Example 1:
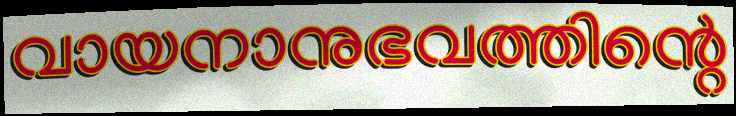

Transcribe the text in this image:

വായനാനുഭവത്തിന്റെ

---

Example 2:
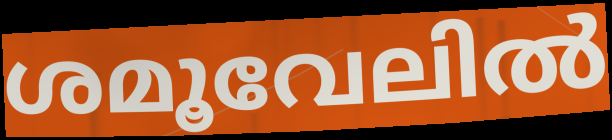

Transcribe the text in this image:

ശമൂവേലിൽ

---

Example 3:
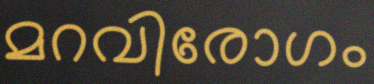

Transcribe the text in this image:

മറവിരോഗം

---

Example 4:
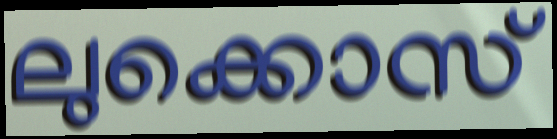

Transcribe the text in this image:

ലുക്കൊസ്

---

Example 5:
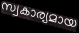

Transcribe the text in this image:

സ്വകാര്യമായ